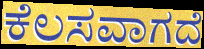
ಕೆಲಸವಾಗದೆ